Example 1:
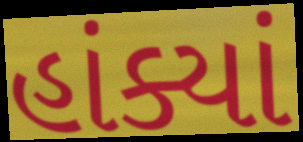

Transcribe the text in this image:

હાંક્યાં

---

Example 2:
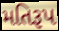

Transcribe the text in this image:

મતિરૂપ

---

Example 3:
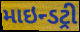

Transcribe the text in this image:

માઇન્ડટ્રી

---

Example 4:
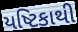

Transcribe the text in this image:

યષ્ટિકાથી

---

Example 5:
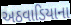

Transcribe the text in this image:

અઠવાડિયાના